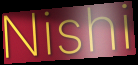
Nishi